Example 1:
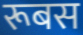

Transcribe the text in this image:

रूबस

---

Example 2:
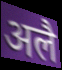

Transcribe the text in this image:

अलै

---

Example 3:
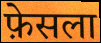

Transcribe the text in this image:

फ़ेसला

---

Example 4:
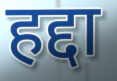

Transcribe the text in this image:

हद्दा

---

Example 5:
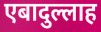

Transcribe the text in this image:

एबादुल्लाह